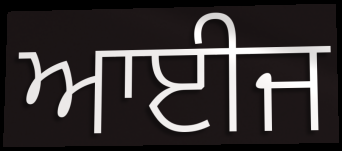
ਆਈਜ